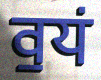
व॒यं